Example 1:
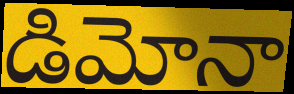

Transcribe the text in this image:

డిమోనా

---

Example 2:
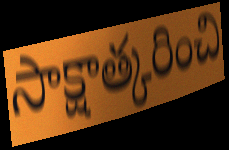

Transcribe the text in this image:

సాక్షాత్కరించి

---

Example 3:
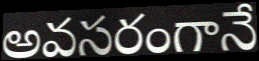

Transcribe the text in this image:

అవసరంగానే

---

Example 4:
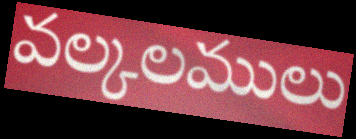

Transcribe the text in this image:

వల్కలములు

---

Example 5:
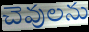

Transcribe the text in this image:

చెవులను